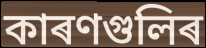
কাৰণগুলিৰ